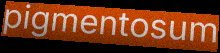
pigmentosum